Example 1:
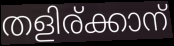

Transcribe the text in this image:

തളിര്ക്കാന്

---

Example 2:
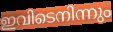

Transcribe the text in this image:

ഇവിടെനിന്നും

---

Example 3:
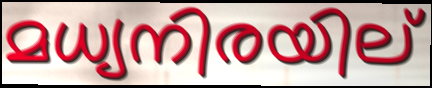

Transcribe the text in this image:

മധ്യനിരയില്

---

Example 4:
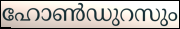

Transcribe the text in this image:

ഹോൺഡുറസും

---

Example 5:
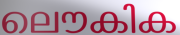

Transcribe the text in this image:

ലൌകിക